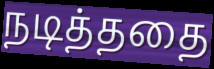
நடித்ததை